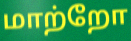
மாற்றோ